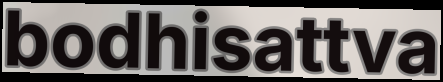
bodhisattva